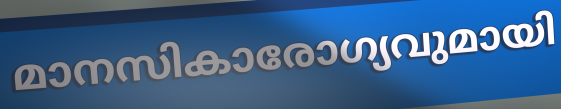
മാനസികാരോഗ്യവുമായി